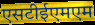
एसटीईएमएम